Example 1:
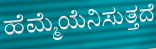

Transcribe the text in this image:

ಹೆಮ್ಮೆಯೆನಿಸುತ್ತದೆ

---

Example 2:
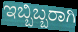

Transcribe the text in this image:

ಇಬ್ಬಿಬ್ಬರಾಗಿ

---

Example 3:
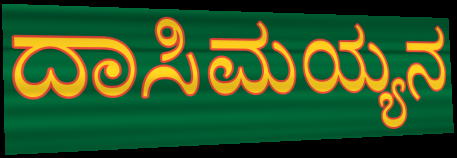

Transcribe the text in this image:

ದಾಸಿಮಯ್ಯನ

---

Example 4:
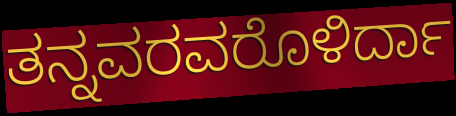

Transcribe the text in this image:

ತನ್ನವರವರೊಳಿರ್ದಾ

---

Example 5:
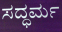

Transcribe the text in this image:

ಸದ್ಧರ್ಮ